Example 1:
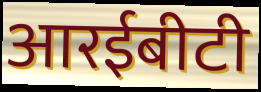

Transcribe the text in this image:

आरईबीटी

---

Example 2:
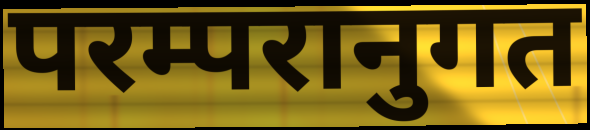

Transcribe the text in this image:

परम्परानुगत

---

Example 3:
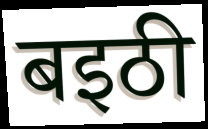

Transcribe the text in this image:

बइठी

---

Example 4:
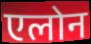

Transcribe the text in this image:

एलोन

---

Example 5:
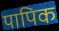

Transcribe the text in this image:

पापिक